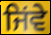
ਜਿਂਵੇ